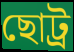
ছোট্র